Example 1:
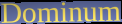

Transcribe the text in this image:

Dominum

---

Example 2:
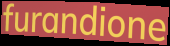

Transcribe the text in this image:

furandione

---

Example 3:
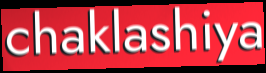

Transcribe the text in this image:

chaklashiya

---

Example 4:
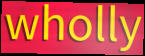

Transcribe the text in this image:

wholly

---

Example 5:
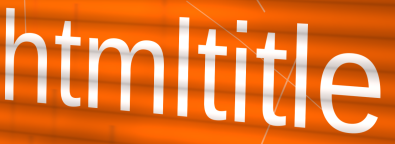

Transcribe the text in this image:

htmltitle